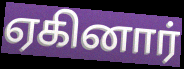
ஏகினார்